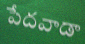
పేదవాడా